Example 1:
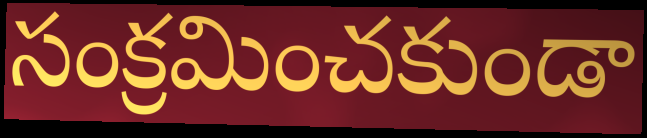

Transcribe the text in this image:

సంక్రమించకుండా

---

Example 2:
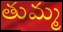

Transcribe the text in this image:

తుమ్మ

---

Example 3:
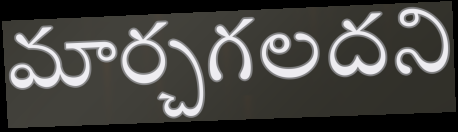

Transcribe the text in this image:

మార్చగలదని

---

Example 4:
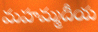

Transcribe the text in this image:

మహమ్మదీయ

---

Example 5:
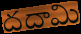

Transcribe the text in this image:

దదామి